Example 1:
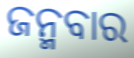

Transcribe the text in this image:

ଜନ୍ମବାର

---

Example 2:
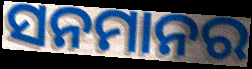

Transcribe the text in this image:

ସନମାନର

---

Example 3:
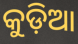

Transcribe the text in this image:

କୁଡ଼ିଆ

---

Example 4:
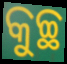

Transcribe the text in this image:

କୁଚ୍ଛ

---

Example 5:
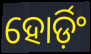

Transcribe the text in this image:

ହୋର୍ଡ଼ିଂ